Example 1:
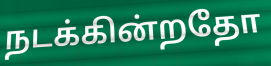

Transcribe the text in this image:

நடக்கின்றதோ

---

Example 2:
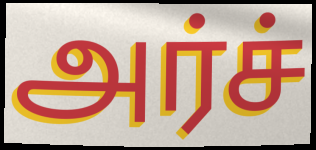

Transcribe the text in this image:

அர்ச்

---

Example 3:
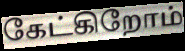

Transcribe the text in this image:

கேட்கிறோம்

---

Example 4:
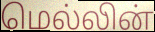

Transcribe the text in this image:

மெல்லின்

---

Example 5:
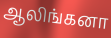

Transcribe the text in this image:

ஆலிங்கனா